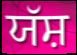
ਯੱਸ਼